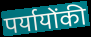
पर्यायोंकी